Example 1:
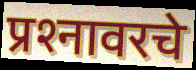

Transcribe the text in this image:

प्रश्नावरचे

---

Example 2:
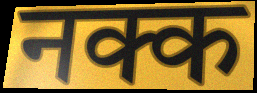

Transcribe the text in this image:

नक्क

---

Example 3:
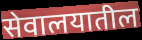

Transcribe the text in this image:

सेवालयातील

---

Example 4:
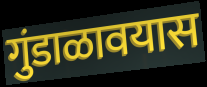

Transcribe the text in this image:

गुंडाळावयास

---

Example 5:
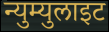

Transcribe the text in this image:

न्युम्युलाइट